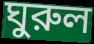
ঘুরুল